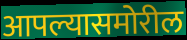
आपल्यासमोरील